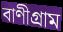
বাণীগ্রাম